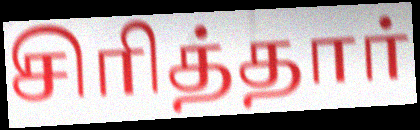
சிரித்தார்